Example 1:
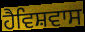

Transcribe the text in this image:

ਹੈਵਿਸ਼ਵਾਸ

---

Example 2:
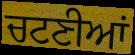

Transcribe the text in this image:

ਚਟਣੀਆਂ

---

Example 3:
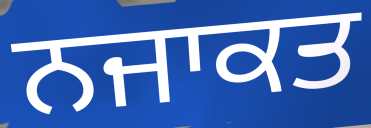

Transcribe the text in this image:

ਨਜਾਕਤ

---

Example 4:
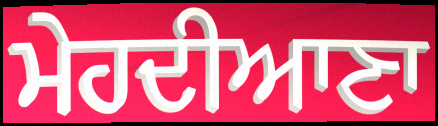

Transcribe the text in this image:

ਮੇਹਦੀਆਣਾ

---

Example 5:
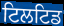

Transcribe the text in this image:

ਟਿਲਟਿਡ